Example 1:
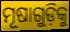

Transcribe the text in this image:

ମୂଷାଗୁଡ଼ିକୁ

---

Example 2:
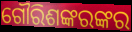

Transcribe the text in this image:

ଗୌରିଶଙ୍କରଙ୍କର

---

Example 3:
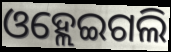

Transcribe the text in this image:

ଓହ୍ଲେଇଗଲି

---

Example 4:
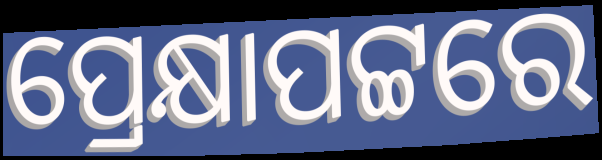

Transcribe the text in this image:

ପ୍ରେକ୍ଷାପଟ୍ଟରେ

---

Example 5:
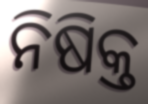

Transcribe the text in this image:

ନିଷିକ୍ତ